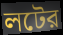
লটের